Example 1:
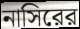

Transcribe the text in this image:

নাসিরের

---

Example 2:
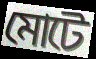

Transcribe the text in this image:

মোটে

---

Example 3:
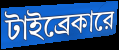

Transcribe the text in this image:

টাইব্রেকারে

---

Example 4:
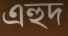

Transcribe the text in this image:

এহুদ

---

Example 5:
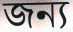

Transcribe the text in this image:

জন্য